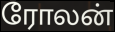
ரோலன்